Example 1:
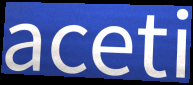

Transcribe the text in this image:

aceti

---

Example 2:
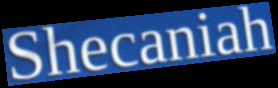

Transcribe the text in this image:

Shecaniah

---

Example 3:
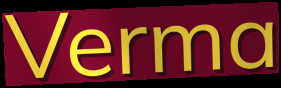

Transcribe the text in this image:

Verma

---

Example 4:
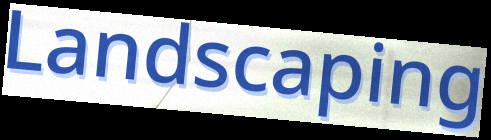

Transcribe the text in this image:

Landscaping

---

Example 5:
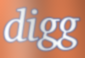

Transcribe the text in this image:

digg